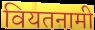
वियतनामी